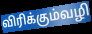
விரிக்கும்வழி